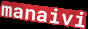
manaivi